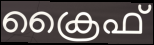
ക്രൈഫ്